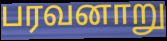
பரவனாறு